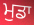
ਮੁਡਾ